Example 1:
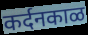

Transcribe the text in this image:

कर्दनकाळ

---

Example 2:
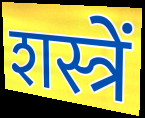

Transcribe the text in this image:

शस्त्रें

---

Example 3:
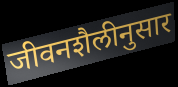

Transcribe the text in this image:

जीवनशैलीनुसार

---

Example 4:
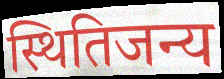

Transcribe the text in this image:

स्थितिजन्य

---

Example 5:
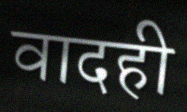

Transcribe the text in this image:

वादही